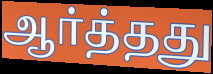
ஆர்த்தது